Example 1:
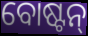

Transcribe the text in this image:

ବୋଷ୍ଟନ୍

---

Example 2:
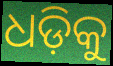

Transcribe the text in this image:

ଧଡ଼ିକୁ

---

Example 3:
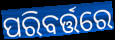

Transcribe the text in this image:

ପରିବର୍ତ୍ତରେ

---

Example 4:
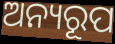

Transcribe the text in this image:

ଅନ୍ୟରୂପ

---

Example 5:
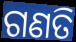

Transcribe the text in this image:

ଗଣତି